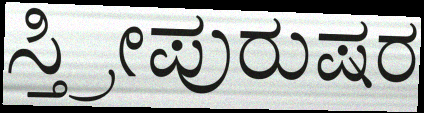
ಸ್ತ್ರೀಪುರುಷರ